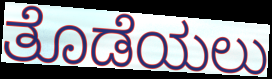
ತೊಡೆಯಲು